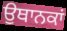
ਉਥਾਨਕਾਂ